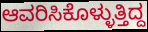
ಆವರಿಸಿಕೊಳ್ಳುತ್ತಿದ್ದ